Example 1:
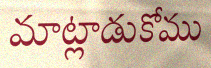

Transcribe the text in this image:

మాట్లాడుకోము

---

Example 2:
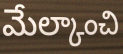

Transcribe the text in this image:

మేల్కాంచి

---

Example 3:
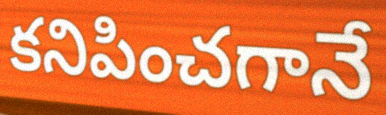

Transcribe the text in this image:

కనిపించగానే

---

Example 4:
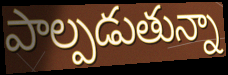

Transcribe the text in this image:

పాల్పడుతున్నా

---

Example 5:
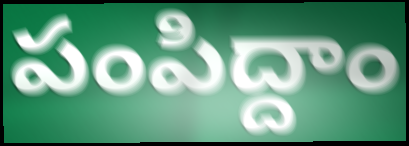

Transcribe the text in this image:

పంపిద్దాం